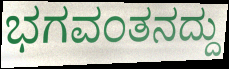
ಭಗವಂತನದ್ದು